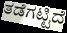
ತಡೆಗಟ್ಟಿದೆ